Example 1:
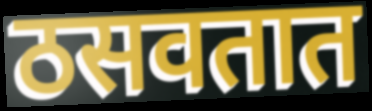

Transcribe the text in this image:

ठसवतात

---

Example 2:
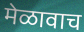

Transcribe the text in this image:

मेळावाच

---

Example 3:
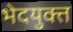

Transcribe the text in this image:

भेदयुक्त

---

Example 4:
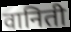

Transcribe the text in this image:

वानिती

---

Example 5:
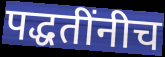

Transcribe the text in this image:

पद्धतींनीच